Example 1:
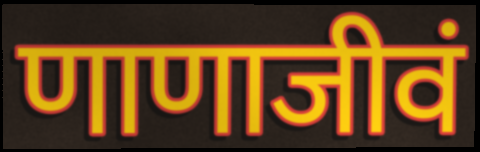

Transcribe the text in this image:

णाणाजीवं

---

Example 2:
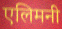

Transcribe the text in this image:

एलिमनी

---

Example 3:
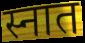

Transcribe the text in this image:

स्नात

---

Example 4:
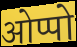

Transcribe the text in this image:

ओप्पो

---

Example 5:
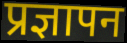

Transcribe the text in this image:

प्रज्ञापन